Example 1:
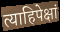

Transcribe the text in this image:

त्याहिपेक्षां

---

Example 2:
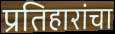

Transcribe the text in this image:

प्रतिहारांचा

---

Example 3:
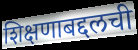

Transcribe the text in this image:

शिक्षणाबद्दलची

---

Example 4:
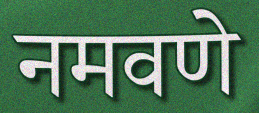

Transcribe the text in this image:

नमवणे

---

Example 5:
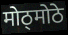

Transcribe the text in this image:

मोठ्मोठे